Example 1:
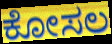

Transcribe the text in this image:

ಕೋಸಲ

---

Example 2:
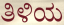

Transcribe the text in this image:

ತಿಳಿಯ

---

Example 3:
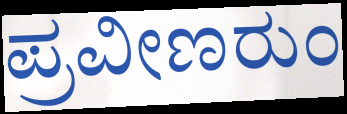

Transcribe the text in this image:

ಪ್ರವೀಣರುಂ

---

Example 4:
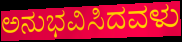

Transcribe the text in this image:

ಅನುಭವಿಸಿದವಳು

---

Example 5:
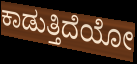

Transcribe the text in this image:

ಕಾಡುತ್ತಿದೆಯೋ